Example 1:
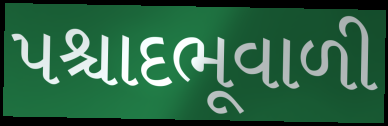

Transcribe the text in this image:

પશ્ચાદભૂવાળી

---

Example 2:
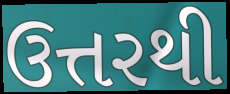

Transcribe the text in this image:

ઉત્તરથી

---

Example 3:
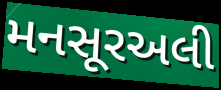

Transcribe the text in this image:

મનસૂરઅલી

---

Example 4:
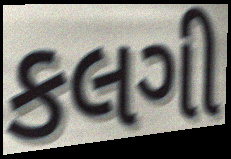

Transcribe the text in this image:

કલગી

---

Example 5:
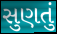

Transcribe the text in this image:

સુણતું